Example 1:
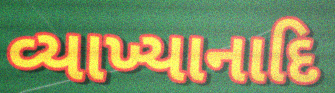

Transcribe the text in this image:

વ્યાખ્યાનાદિ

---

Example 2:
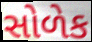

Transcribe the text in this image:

સોળેક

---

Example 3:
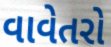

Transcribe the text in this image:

વાવેતરો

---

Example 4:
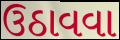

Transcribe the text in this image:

ઉઠાવવા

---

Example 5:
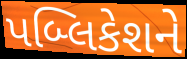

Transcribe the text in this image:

પબ્લિકેશને